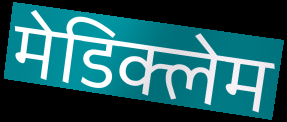
मेडिक्लेम